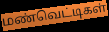
மண்வெட்டிகள்